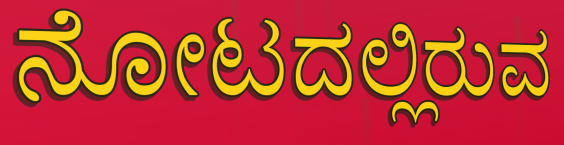
ನೋಟದಲ್ಲಿರುವ